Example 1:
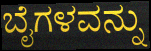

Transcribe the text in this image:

ಬೈಗಳವನ್ನು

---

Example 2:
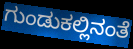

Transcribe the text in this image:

ಗುಂಡುಕಲ್ಲಿನಂತೆ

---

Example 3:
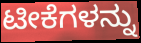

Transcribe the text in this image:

ಟೀಕೆಗಳನ್ನು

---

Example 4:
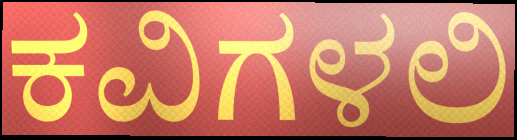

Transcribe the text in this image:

ಕವಿಗಳಲಿ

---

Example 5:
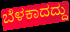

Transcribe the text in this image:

ಬೆಳಕಾದದ್ದು